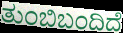
ತುಂಬಿಬಂದಿದೆ